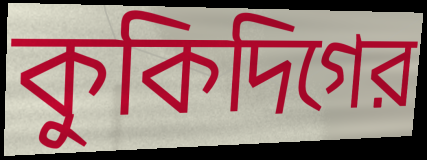
কুকিদিগের